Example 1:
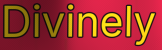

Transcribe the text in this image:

Divinely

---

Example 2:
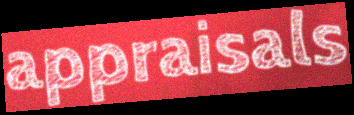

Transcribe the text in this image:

appraisals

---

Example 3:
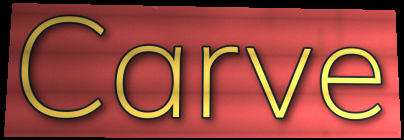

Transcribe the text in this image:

Carve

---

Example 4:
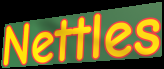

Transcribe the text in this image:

Nettles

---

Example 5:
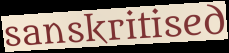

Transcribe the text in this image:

sanskritised